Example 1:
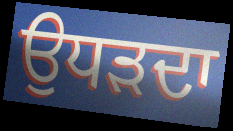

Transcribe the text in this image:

ਉਧੜਦਾ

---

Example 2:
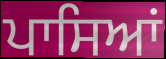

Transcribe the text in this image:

ਪਾਸਿਆਂ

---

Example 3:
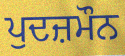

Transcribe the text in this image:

ਪੁਦਜ਼ਮੌਨ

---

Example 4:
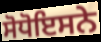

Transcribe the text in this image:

ਸੋਧੋਇਸਨੇ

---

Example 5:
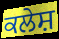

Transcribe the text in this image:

ਕਲੇਸ਼